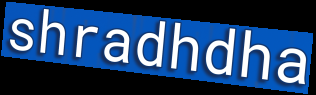
shradhdha